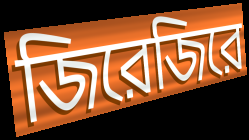
জিরেজিরে